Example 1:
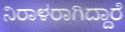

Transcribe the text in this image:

ನಿರಾಳರಾಗಿದ್ದಾರೆ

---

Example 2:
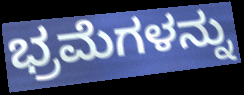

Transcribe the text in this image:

ಭ್ರಮೆಗಳನ್ನು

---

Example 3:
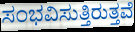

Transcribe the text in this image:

ಸಂಭವಿಸುತ್ತಿರುತ್ತವೆ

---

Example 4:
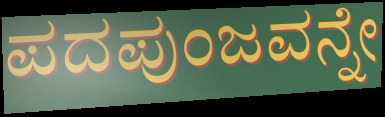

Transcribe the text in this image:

ಪದಪುಂಜವನ್ನೇ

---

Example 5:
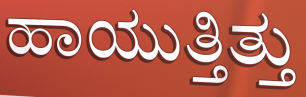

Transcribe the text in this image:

ಹಾಯುತ್ತಿತ್ತು